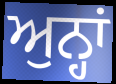
ਅੁਨ੍ਹਾਂ